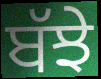
ਬੱਝੇ